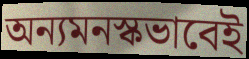
অন্যমনস্কভাবেই